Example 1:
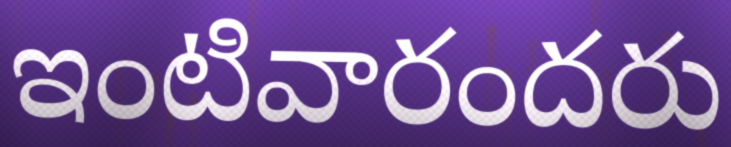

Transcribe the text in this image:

ఇంటివారందరు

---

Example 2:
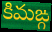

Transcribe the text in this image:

కిమఙ్గ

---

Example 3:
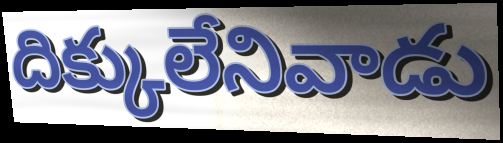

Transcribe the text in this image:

దిక్కులేనివాడు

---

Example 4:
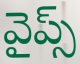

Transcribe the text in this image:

వైప్స్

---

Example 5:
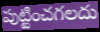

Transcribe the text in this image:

పుట్టించగలదు